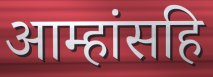
आम्हांसहि